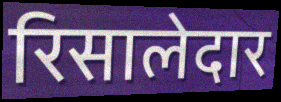
रिसालेदार